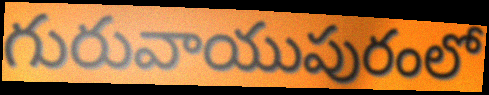
గురువాయుపురంలో